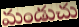
మండుచు